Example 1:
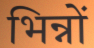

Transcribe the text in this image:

भिन्नों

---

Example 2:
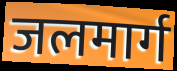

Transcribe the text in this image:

जलमार्ग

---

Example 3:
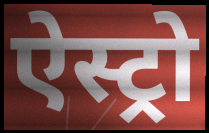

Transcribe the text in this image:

ऐस्ट्रो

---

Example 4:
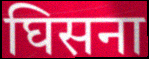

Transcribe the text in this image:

घिसना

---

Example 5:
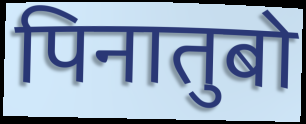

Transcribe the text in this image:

पिनातुबो